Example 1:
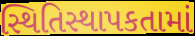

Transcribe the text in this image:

સ્થિતિસ્થાપકતામાં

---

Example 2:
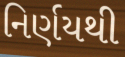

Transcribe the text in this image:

નિર્ણયથી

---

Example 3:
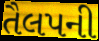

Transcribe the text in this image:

તૈલપની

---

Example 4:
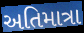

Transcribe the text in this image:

અતિમાત્રા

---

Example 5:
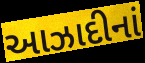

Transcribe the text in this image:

આઝાદીનાં